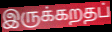
இருக்கறதப்